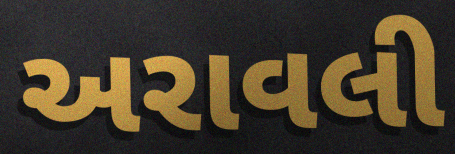
અરાવલી